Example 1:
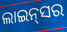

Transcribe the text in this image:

ଲାଇନ୍‌ସର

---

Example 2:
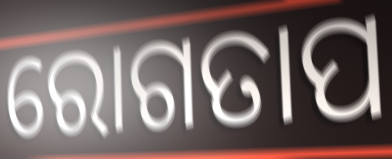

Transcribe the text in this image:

ରୋଗତାପ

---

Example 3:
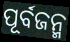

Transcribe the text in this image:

ପୂର୍ବଜନ୍ମ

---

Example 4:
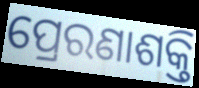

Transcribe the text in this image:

ପ୍ରେରଣାଶକ୍ତି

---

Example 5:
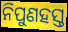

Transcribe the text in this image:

ନିପୁଣହସ୍ତ